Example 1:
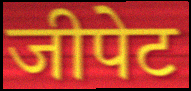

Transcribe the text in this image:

जीपेट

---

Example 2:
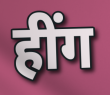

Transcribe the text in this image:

हींग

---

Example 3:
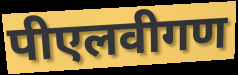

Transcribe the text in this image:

पीएलवीगण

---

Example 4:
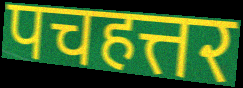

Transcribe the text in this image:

पचहत्तर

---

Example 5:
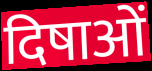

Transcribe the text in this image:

दिषाओं